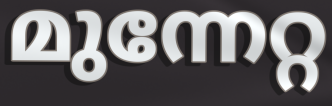
മുന്നേറ്റ